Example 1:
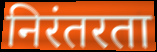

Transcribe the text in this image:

निरंतरता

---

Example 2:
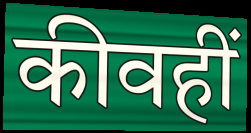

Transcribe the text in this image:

कीवहीं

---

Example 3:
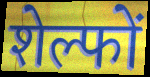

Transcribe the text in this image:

शेल्फों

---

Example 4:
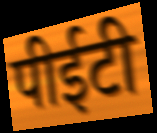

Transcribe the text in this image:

पीईटी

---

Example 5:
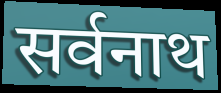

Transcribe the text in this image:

सर्वनाथ